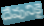
దేవునికై